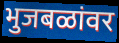
भुजबळांवर